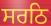
ਸਰਠਿ